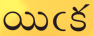
యిఁక